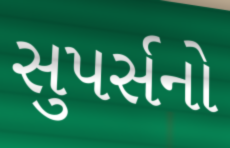
સુપર્સનો